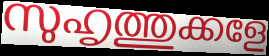
സുഹൃത്തുക്കളേ